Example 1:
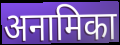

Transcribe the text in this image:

अनामिका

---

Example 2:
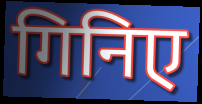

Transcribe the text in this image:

गिनिए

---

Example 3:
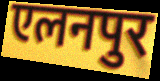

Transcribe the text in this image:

एलनपुर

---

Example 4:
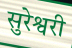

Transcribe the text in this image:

सुरेश्वरी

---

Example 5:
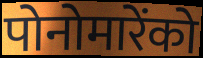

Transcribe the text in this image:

पोनोमारेंको